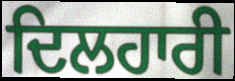
ਦਿਲਹਾਰੀ